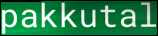
pakkutal